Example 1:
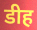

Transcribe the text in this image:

डीह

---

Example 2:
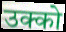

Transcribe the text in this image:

उक्को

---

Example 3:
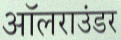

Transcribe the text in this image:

ऑलराउंडर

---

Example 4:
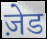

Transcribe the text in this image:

ज़ेड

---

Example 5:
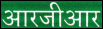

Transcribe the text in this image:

आरजीआर